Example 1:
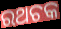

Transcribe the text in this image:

ରଥଚକ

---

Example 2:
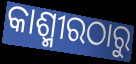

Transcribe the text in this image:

କାଶ୍ମୀରଠାରୁ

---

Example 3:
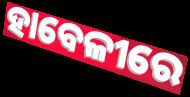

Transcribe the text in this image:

ହାବେଳୀରେ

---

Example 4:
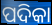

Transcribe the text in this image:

ପଦିକା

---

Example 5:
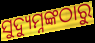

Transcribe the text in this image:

ସୁଦ୍ୟୁମ୍ନଙ୍କଠାରୁ